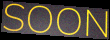
SOON